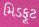
મિડફૂટ